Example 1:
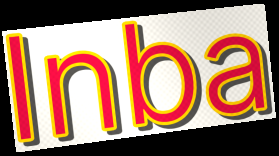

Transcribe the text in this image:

Inba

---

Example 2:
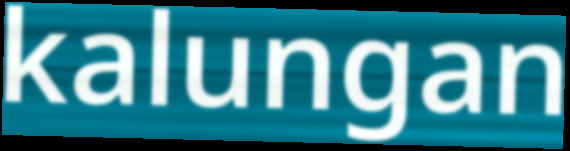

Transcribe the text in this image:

kalungan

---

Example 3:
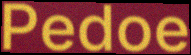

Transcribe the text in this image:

Pedoe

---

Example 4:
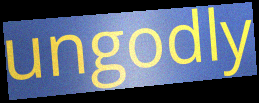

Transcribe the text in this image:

ungodly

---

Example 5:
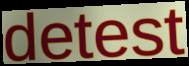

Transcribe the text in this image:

detest